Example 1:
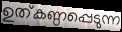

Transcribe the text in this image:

ഉത്കണ്ഠപ്പെടുന്ന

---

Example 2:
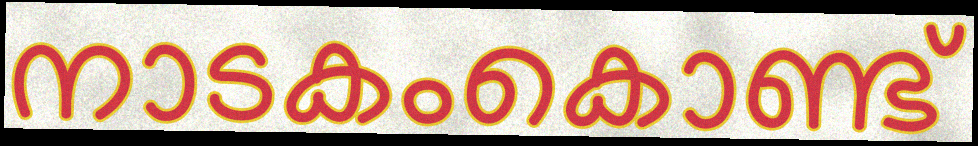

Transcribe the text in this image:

നാടകംകൊണ്ട്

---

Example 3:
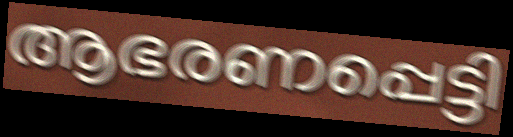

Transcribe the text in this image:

ആഭരണപ്പെട്ടി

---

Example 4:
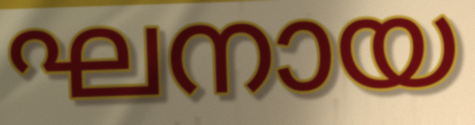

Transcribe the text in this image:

ഘനായ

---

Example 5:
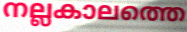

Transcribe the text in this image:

നല്ലകാലത്തെ